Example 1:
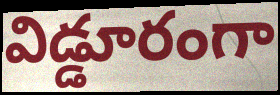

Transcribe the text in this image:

విడ్డూరంగా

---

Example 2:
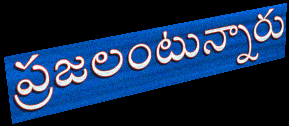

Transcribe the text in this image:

ప్రజలంటున్నారు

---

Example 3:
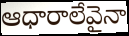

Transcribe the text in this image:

ఆధారాలేవైనా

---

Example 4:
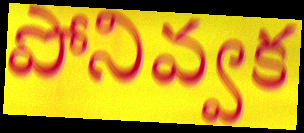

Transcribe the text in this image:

పోనివ్వక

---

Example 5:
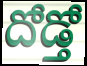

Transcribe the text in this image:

దోడ్తో